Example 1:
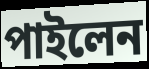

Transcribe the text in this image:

পাইলেন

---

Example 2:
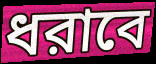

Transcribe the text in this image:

ধরাবে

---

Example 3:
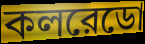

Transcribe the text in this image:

কলরেডো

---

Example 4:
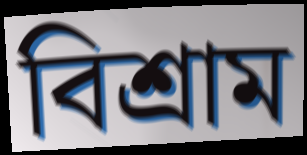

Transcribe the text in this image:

বিশ্রাম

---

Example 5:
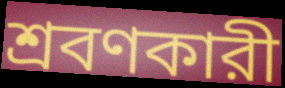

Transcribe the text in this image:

শ্রবণকারী